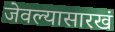
जेवल्यासारखं